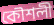
কৌশলী